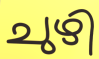
ചുഴി